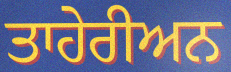
ਤਾਹੇਰੀਅਨ